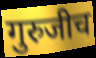
गुरुजीच